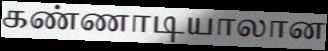
கண்ணாடியாலான